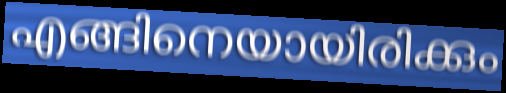
എങ്ങിനെയായിരിക്കും